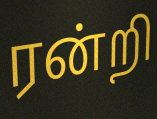
ரன்றி